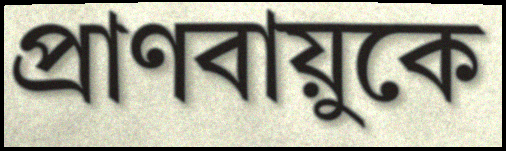
প্রাণবায়ুকে